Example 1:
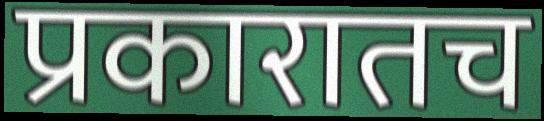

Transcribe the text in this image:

प्रकारातच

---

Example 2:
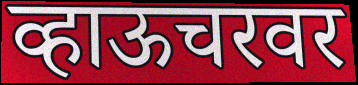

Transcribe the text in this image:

व्हाऊचरवर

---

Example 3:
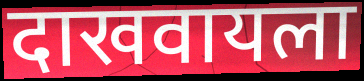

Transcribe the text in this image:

दाखवायला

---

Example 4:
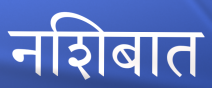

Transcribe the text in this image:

नशिबात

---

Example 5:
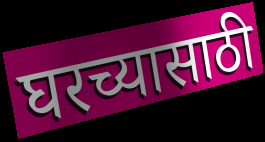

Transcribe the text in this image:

घरच्यासाठी